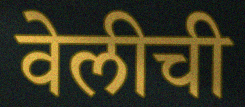
वेलीची